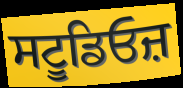
ਸਟੂਡਿਓਜ਼